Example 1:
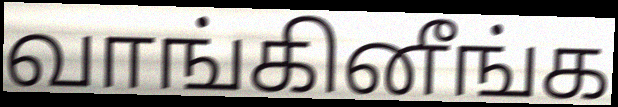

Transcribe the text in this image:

வாங்கினீங்க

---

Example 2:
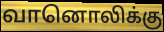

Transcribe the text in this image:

வானொலிக்கு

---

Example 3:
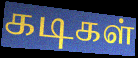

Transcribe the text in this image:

கடிகள்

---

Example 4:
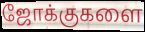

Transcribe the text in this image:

ஜோக்குகளை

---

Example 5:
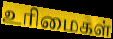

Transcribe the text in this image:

உரிமைகள்